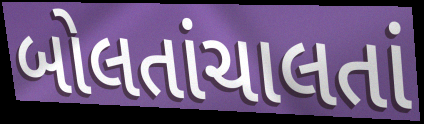
બોલતાંચાલતાં